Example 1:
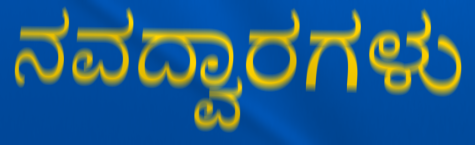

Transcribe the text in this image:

ನವದ್ವಾರಗಳು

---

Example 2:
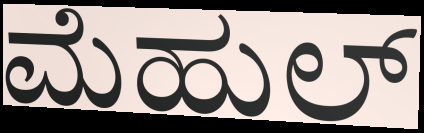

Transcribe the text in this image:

ಮೆಹುಲ್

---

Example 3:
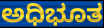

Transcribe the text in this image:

ಅಧಿಭೂತ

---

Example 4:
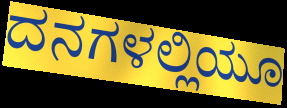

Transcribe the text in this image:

ದನಗಳಲ್ಲಿಯೂ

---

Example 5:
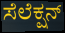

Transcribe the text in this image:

ಸೆಲೆಕ್ಷನ್